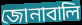
জোনাবালি